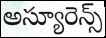
అస్యూరెన్స్